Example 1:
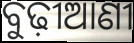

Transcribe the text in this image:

ବୁଢ଼ୀଆଣୀ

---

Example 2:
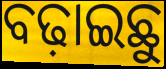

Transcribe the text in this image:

ବଢ଼ାଇଛୁ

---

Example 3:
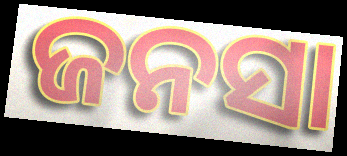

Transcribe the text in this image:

ଜନସା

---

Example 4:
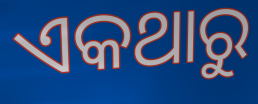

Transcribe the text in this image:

ଏକଥାରୁ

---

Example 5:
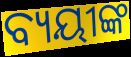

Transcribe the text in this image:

ବ୍ୟୟୀଙ୍କ